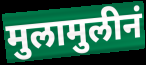
मुलामुलीनं